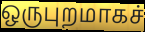
ஒருபுறமாகச்